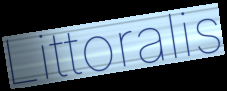
Littoralis